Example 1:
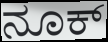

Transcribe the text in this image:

ನೂಕ್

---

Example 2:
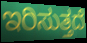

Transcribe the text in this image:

ಇರಿಸುತ್ತದೆ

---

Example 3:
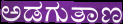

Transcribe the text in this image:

ಅಡಗುತಾಣ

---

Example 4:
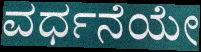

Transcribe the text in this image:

ವರ್ಧನೆಯೇ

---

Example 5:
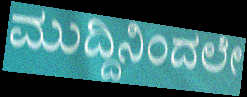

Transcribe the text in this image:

ಮುದ್ದಿನಿಂದಲೇ